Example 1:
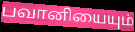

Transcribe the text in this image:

பவானியையும்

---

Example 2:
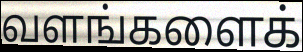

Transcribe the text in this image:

வளங்களைக்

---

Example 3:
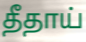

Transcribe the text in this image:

தீதாய்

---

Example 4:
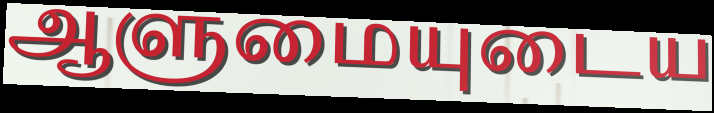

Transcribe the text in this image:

ஆளுமையுடைய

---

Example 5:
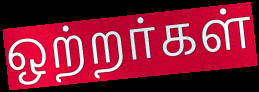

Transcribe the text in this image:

ஒற்றர்கள்